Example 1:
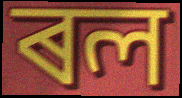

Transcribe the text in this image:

ৰল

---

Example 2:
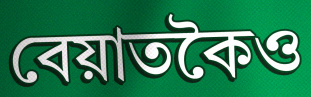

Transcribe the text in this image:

বেয়াতকৈও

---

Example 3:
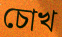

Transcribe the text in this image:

চোখ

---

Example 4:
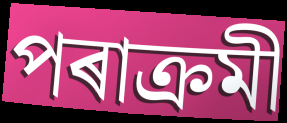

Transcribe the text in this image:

পৰাক্ৰমী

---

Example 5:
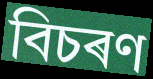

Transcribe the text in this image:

বিচৰণ